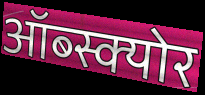
ऑब्स्क्योर